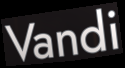
Vandi